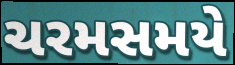
ચરમસમયે